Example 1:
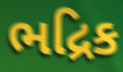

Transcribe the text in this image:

ભદ્રિક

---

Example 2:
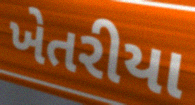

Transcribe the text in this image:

ખેતરીયા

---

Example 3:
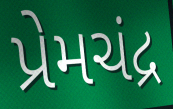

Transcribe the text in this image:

પ્રેમચંદ્ર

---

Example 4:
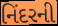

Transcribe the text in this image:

નિંદરની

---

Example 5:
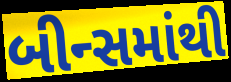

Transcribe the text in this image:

બીન્સમાંથી